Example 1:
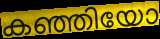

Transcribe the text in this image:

കഞ്ഞിയോ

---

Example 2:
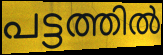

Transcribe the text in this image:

പട്ടത്തിൽ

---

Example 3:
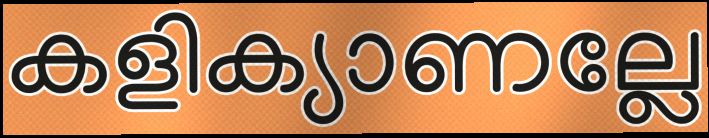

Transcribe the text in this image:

കളിക്യാണല്ലേ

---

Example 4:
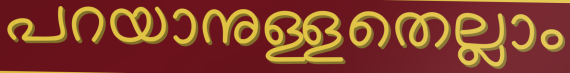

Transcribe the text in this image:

പറയാനുള്ളതെല്ലാം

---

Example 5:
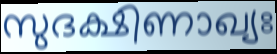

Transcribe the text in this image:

സുദക്ഷിണാഖ്യഃ